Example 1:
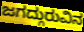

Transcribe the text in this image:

ಜಗದ್ಗುರುವಿನ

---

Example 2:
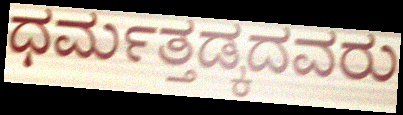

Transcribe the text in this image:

ಧರ್ಮತ್ತಡ್ಕದವರು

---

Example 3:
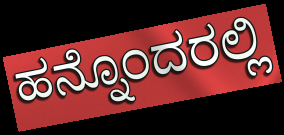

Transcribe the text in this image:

ಹನ್ನೊಂದರಲ್ಲಿ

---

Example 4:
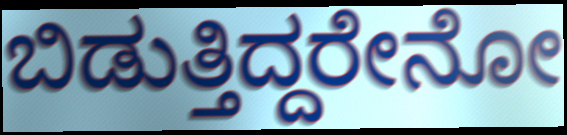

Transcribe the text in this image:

ಬಿಡುತ್ತಿದ್ದರೇನೋ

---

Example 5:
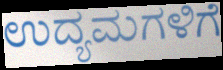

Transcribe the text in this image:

ಉದ್ಯಮಗಳಿಗೆ